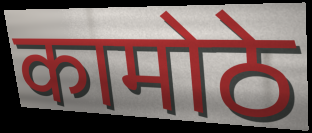
कामोठे